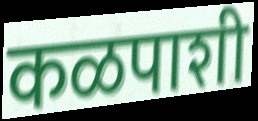
कळपाशी